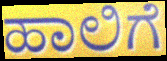
ಹಾಲಿಗೆ